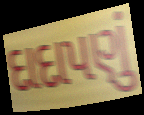
દાદાપણું